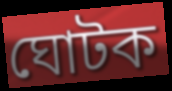
ঘোটক